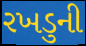
રખડુની